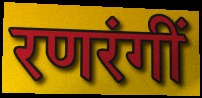
रणरंगीं